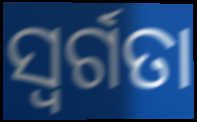
ସ୍ୱର୍ଗତା